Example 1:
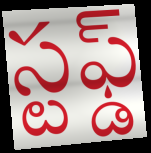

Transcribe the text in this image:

స్టఫ్డ్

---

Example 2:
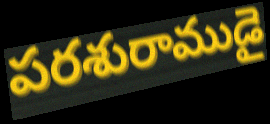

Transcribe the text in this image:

పరశురాముడై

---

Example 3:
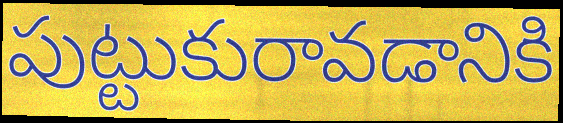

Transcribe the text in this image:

పుట్టుకురావడానికి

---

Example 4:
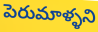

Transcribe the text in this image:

పెరుమాళ్ళని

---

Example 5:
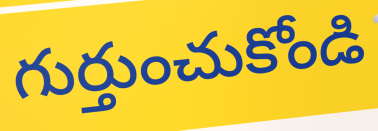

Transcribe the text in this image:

గుర్తుంచుకోండి